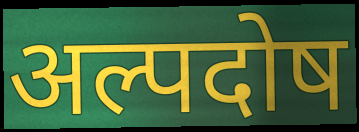
अल्पदोष